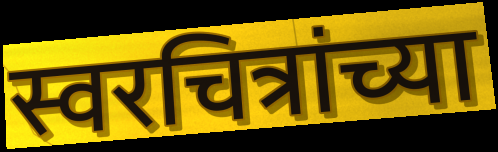
स्वरचित्रांच्या